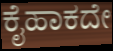
ಕೈಹಾಕದೇ